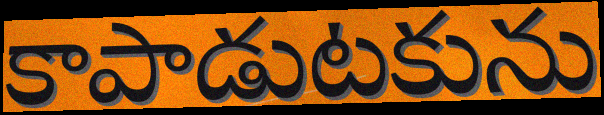
కాపాడుటకును